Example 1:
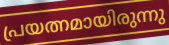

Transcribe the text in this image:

പ്രയത്നമായിരുന്നു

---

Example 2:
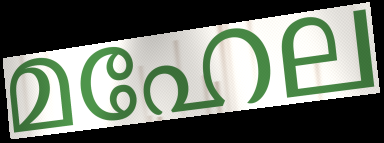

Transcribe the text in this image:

മഹേല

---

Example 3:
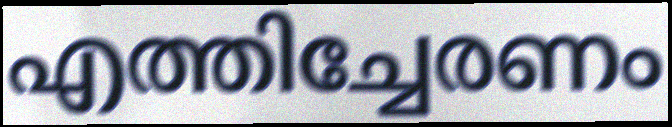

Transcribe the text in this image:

എത്തിച്ചേരണം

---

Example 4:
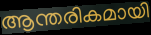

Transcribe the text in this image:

ആന്തരികമായി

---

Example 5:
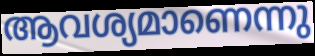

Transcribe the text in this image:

ആവശ്യമാണെന്നു